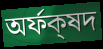
অর্ফক্‌ষদ